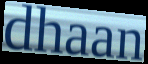
dhaan